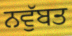
ਨਵੁੱਬਤ